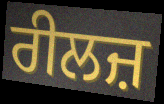
ਰੀਲਜ਼